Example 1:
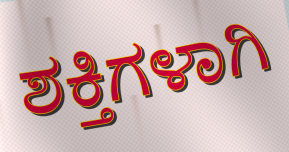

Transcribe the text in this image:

ಶಕ್ತಿಗಳಾಗಿ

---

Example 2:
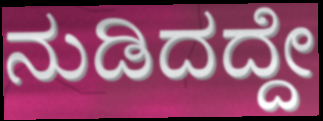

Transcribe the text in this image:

ನುಡಿದದ್ದೇ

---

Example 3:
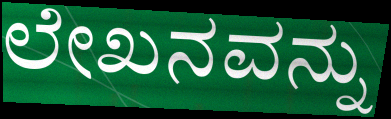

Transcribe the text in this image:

ಲೇಖನವನ್ನು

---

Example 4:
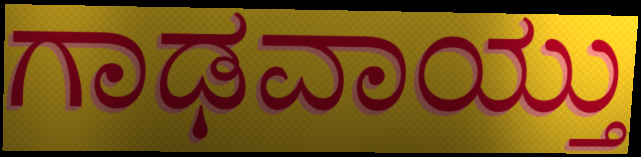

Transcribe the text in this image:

ಗಾಢವಾಯ್ತು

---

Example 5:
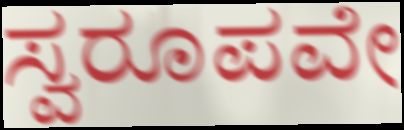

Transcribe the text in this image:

ಸ್ವರೂಪವೇ